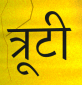
त्रूटी